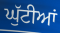
ਘੁੱਟੀਆਂ